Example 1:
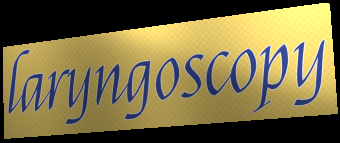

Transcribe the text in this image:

laryngoscopy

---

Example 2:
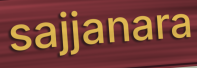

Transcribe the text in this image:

sajjanara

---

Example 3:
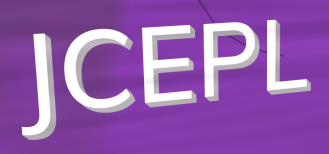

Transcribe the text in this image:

JCEPL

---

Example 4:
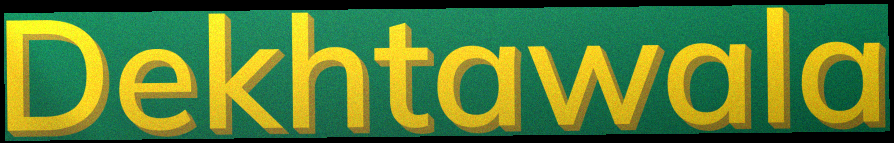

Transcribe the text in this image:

Dekhtawala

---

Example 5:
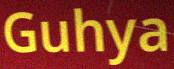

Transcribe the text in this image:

Guhya